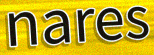
nares